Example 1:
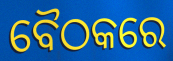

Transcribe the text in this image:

ବୈଠକରେ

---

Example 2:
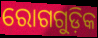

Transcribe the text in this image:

ରୋଗଗୁଡ଼ିକ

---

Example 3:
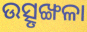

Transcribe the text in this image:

ଉତ୍ସୃଙ୍ଖଳା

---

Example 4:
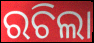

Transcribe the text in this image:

ରଚିଲା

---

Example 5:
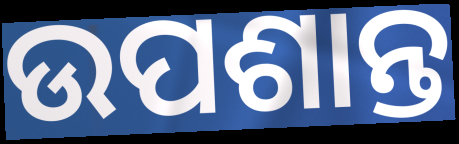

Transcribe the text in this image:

ଉପଶାନ୍ତ